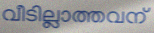
വീടില്ലാത്തവന്